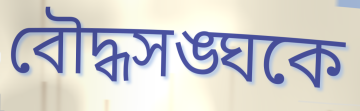
বৌদ্ধসঙ্ঘকে